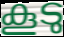
കൂടു